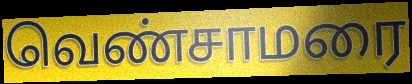
வெண்சாமரை